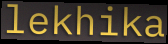
lekhika